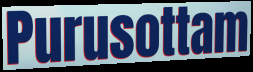
Purusottam